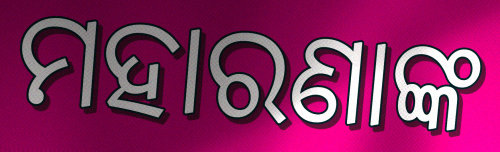
ମହାରଣାଙ୍କ